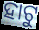
ହାଟୁ